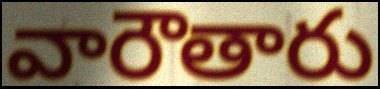
వారౌతారు